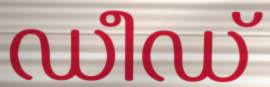
ഡീഡ്